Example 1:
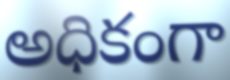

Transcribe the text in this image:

అధికంగా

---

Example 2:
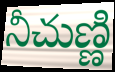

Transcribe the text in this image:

నీచుణ్ణి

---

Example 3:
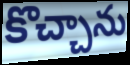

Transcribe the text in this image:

కొచ్చాను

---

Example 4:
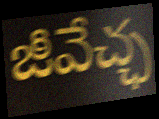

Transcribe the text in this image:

జీవేచ్ఛ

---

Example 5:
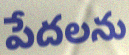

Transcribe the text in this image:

పేదలను